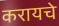
करायचे